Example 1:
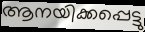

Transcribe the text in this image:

ആനയിക്കപ്പെട്ടു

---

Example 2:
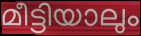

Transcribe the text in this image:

മീട്ടിയാലും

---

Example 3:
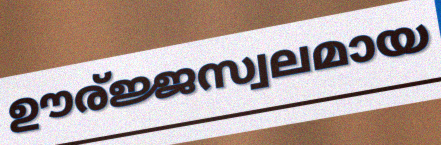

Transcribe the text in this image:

ഊര്ജ്ജസ്വലമായ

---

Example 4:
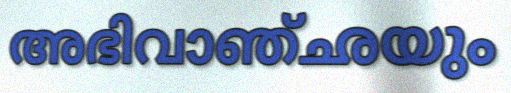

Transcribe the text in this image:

അഭിവാഞ്ഛയും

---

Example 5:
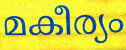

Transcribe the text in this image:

മകീര്യം